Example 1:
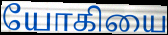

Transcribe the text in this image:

யோகியை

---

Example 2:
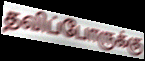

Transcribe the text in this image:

தவிப்போருக்கு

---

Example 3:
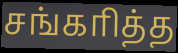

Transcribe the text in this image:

சங்கரித்த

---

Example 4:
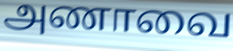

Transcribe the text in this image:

அணாவை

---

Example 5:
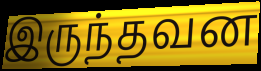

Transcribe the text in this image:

இருந்தவன